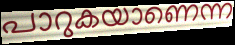
പാറുകയാണെന്ന